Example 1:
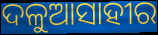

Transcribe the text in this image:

ଦଳୁଆସାହୀର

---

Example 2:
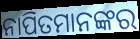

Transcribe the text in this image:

ନାପିତମାନଙ୍କର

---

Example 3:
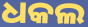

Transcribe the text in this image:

ଧକଲ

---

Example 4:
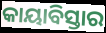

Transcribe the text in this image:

କାୟାବିସ୍ତାର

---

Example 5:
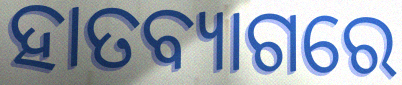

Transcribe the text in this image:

ହାତବ୍ୟାଗରେ